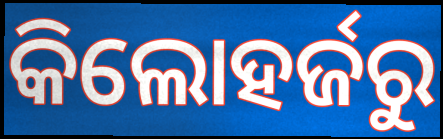
କିଲୋହର୍ଜରୁ